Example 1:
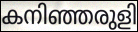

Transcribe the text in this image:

കനിഞ്ഞരുളി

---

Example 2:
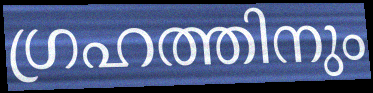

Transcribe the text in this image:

ഗ്രഹത്തിനും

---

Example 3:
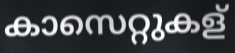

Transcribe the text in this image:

കാസെറ്റുകള്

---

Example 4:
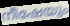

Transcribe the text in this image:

നീഷേയും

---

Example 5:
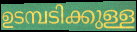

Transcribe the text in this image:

ഉടമ്പടിക്കുള്ള